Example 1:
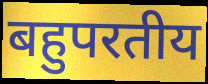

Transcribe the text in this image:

बहुपरतीय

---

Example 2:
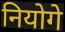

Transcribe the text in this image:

नियोगे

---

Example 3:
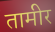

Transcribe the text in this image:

तामीर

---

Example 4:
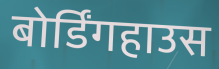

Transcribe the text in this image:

बोर्डिंगहाउस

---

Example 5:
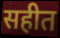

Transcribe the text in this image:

सहीत